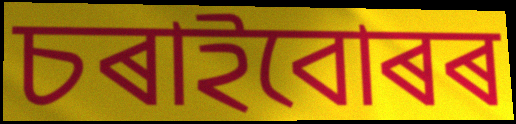
চৰাইবোৰৰ